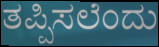
ತಪ್ಪಿಸಲೆಂದು